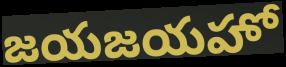
జయజయహో